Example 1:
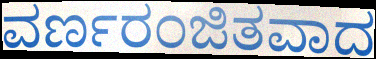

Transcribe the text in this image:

ವರ್ಣರಂಜಿತವಾದ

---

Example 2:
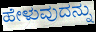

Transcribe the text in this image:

ಹೇಳುವುದನ್ನು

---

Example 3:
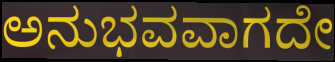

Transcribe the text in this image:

ಅನುಭವವಾಗದೇ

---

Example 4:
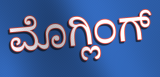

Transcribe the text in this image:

ಮೊಗ್ಲಿಂಗ್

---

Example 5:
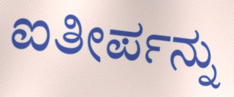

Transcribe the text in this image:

ಐತೀರ್ಪನ್ನು